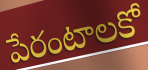
పేరంటాలకో